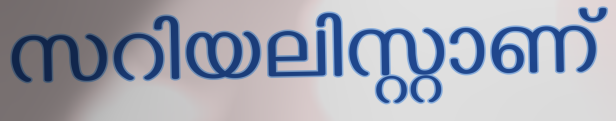
സറിയലിസ്റ്റാണ്